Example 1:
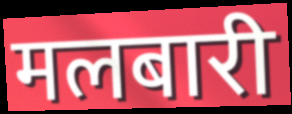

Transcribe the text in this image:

मलबारी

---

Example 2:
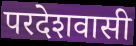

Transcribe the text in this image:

परदेशवासी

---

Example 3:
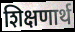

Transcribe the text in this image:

शिक्षणार्थ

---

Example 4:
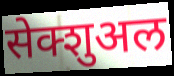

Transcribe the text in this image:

सेक्शुअल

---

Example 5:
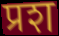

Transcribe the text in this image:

प्रश